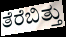
ತೆರೆಬಿತ್ತು